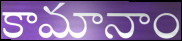
కామానాం